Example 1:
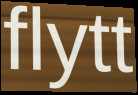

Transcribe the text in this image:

flytt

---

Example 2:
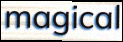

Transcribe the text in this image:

magical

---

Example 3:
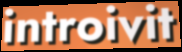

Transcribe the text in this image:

introivit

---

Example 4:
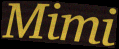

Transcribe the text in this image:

Mimi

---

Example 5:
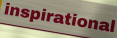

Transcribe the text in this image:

inspirational